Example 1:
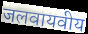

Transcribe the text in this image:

जलवायवीय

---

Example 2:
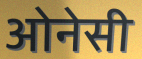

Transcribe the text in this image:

ओनेसी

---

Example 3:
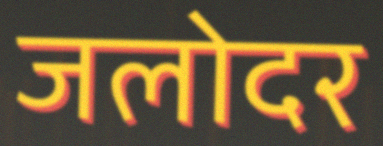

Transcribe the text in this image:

जलोदर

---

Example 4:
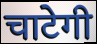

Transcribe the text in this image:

चाटेगी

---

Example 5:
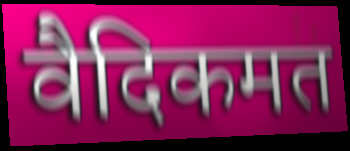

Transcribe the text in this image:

वैदिकमत